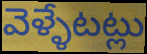
వెళ్ళేటట్లు